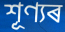
শূণ্যৰ